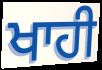
ਖਾਹੀ